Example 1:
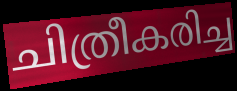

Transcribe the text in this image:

ചിത്രീകരിച്ച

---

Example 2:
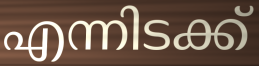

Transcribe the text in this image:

എന്നിടക്ക്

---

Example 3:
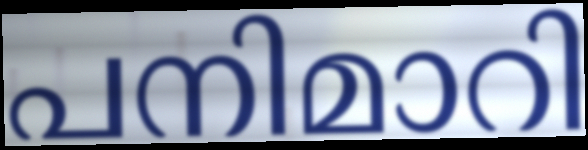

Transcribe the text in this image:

പനിമാറി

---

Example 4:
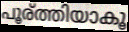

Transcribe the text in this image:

പൂര്ത്തിയാകൂ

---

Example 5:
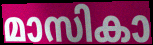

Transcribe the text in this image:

മാസികാ